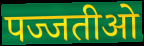
पज्जतीओ